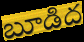
బూడిద